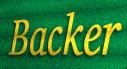
Backer